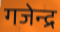
गजेन्द्र